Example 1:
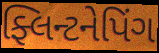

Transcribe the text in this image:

ફ્લિન્ટનેપિંગ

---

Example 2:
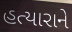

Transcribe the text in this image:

હત્યારાને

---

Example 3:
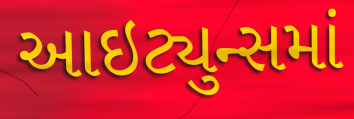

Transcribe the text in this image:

આઇટ્યુન્સમાં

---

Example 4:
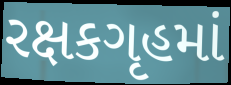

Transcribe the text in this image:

રક્ષકગૃહમાં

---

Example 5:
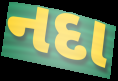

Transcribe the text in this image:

નદા